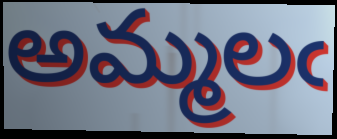
అమ్మలఁ